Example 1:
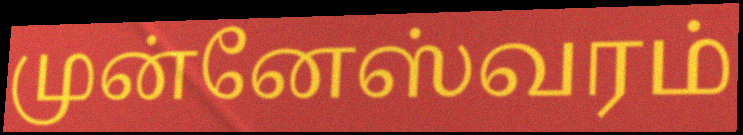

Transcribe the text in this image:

முன்னேஸ்வரம்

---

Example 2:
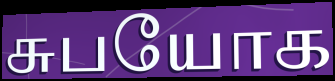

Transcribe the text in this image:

சுபயோக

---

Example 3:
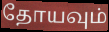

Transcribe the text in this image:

தோயவும்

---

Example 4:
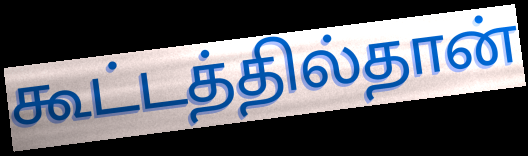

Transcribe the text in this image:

கூட்டத்தில்தான்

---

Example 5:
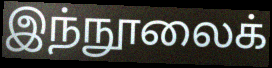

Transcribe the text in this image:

இந்நூலைக்